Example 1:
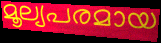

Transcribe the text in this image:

മൂല്യപരമായ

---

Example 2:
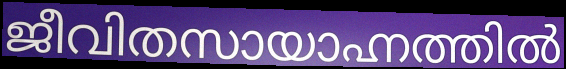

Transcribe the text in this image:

ജീവിതസായാഹ്നത്തിൽ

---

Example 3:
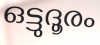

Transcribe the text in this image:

ഒട്ടുദൂരം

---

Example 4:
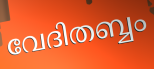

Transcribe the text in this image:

വേദിതബ്ബം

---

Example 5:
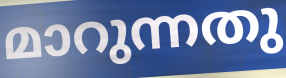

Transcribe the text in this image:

മാറുന്നതു